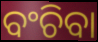
ବଂଚିବା